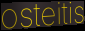
osteitis